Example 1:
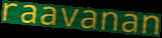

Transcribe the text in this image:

raavanan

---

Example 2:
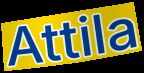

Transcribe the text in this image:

Attila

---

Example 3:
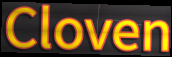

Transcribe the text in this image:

Cloven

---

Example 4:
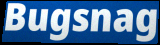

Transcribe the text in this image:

Bugsnag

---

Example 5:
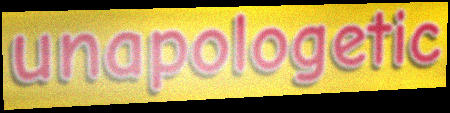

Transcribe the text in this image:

unapologetic